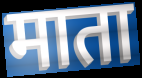
माता